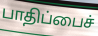
பாதிப்பைச்